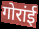
गोरांई